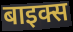
बाइक्स